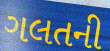
ગલતની